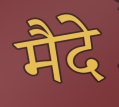
मैदे